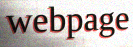
webpage